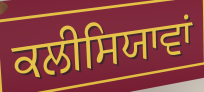
ਕਲੀਸਿਯਾਵਾਂ